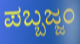
ಪಬ್ಬಜ್ಜಂ